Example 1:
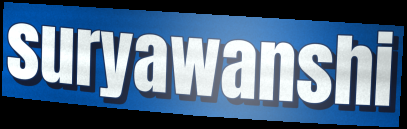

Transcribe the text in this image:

suryawanshi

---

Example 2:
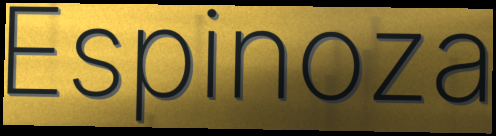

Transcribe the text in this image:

Espinoza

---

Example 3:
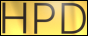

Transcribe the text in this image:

HPD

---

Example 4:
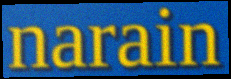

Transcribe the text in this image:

narain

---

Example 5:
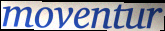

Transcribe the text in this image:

moventur